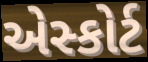
એસ્કોર્ટ